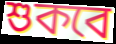
শুকবে